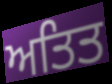
ਅਤਿਤ